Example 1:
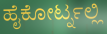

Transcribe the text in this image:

ಹೈಕೋರ್ಟ್ನಲ್ಲಿ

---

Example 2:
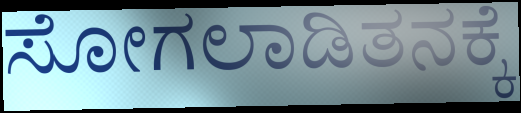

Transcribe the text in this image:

ಸೋಗಲಾಡಿತನಕ್ಕೆ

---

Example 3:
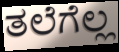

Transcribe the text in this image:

ತಲೆಗೆಲ್ಲ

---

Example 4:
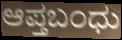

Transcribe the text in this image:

ಆಪ್ತಬಂಧು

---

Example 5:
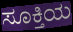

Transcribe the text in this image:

ಸೂಕ್ತಿಯ